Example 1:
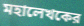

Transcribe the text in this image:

মহালেখকের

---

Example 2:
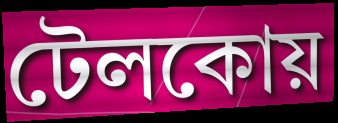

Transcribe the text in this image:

টেলকোয়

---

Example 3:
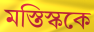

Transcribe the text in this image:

মস্তিস্ককে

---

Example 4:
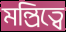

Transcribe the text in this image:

মন্ত্রিত্বে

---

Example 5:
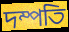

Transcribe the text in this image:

দম্পতি